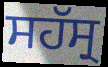
ਸਹੱਸ੍ਰ